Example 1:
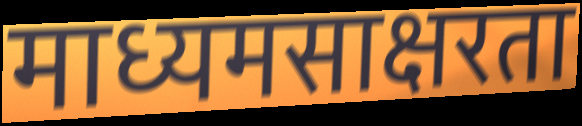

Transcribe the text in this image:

माध्यमसाक्षरता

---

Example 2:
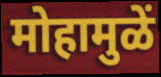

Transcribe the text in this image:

मोहामुळें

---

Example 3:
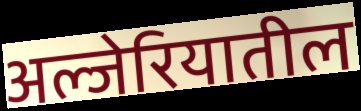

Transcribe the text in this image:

अल्जेरियातील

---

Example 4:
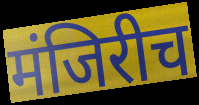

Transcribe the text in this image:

मंजिरीच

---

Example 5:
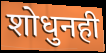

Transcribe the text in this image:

शोधुनही